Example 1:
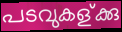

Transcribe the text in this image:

പടവുകള്ക്കു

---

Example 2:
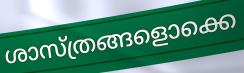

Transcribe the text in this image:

ശാസ്ത്രങ്ങളൊക്കെ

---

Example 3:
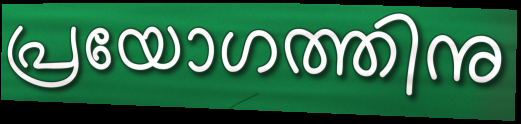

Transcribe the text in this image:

പ്രയോഗത്തിനു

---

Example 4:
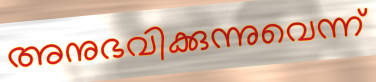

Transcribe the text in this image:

അനുഭവിക്കുന്നുവെന്ന്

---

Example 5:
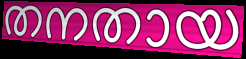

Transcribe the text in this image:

തനതായ